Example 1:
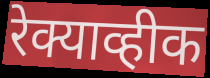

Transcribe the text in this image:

रेक्याव्हीक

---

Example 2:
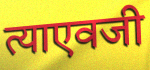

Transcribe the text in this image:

त्याएवजी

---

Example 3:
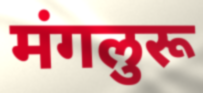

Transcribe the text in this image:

मंगलुरू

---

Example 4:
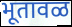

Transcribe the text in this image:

भूतावळ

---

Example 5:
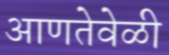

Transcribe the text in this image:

आणतेवेळी